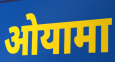
ओयामा